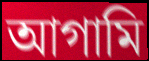
আগামি